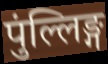
पुंल्लिङ्ग